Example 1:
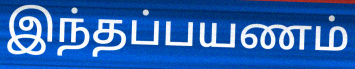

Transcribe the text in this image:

இந்தப்பயணம்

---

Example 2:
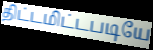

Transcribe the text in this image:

திட்டமிட்டபடியே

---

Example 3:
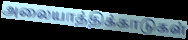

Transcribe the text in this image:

அலையாத்திக்காடுகள்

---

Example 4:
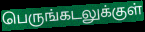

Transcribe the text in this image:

பெருங்கடலுக்குள்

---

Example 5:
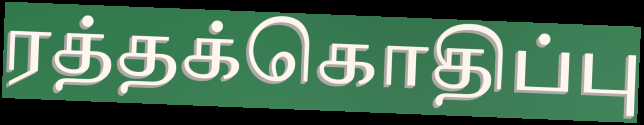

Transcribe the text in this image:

ரத்தக்கொதிப்பு